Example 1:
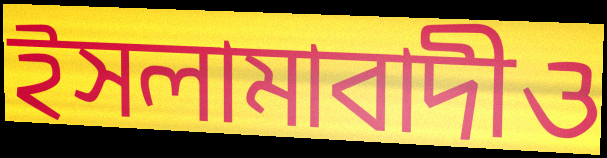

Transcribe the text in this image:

ইসলামাবাদীও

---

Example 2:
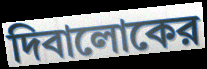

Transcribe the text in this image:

দিবালোকের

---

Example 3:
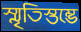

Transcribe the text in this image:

স্মৃতিস্তম্ভে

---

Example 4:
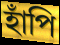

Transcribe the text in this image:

হাঁপি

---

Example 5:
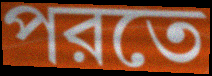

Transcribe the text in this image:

পরতে